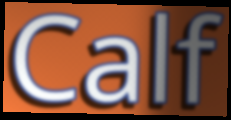
Calf